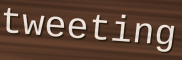
tweeting